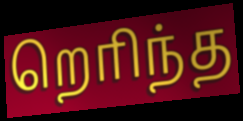
றெரிந்த